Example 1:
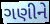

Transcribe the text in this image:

ગણીને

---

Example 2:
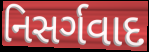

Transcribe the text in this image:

નિસર્ગવાદ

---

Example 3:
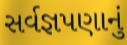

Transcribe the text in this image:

સર્વજ્ઞપણાનું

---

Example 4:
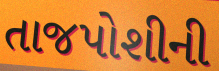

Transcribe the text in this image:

તાજપોશીની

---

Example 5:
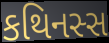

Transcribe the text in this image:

કથિનસ્સ